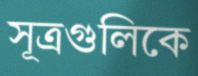
সূত্রগুলিকে